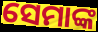
ସେମାଙ୍କ